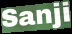
Sanji